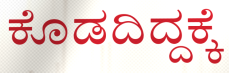
ಕೊಡದಿದ್ದಕ್ಕೆ